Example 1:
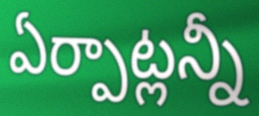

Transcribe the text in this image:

ఏర్పాట్లన్నీ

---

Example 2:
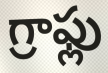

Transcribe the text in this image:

గ్రాఫ్లు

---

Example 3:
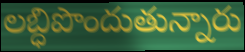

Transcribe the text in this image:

లబ్ధిపొందుతున్నారు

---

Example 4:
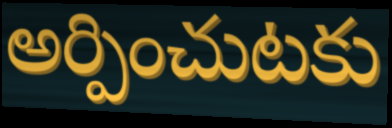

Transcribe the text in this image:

అర్పించుటకు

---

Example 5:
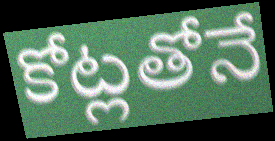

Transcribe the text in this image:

కోట్లతోనే